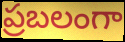
ప్రబలంగా